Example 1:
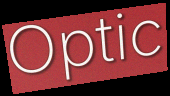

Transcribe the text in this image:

Optic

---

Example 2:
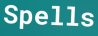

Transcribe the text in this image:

Spells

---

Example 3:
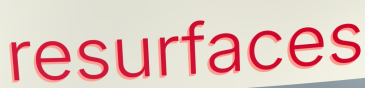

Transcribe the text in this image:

resurfaces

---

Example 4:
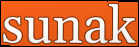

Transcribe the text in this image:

sunak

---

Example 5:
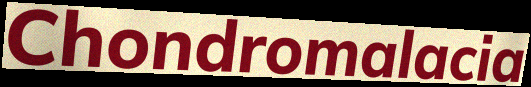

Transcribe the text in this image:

Chondromalacia